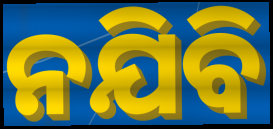
ନଯିବି